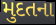
મુદતના